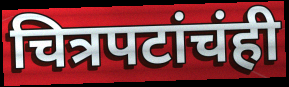
चित्रपटांचंही